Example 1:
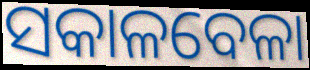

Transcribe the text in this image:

ସକାଳବେଳା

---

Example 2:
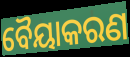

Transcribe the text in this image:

ବୈୟାକରଣ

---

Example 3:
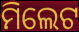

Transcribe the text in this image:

ମିଲେଟ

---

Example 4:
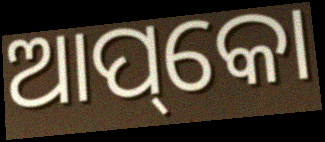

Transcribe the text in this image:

ଆପ୍‌କୋ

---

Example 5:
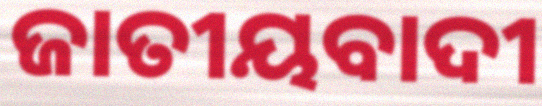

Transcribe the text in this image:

ଜାତୀୟବାଦୀ